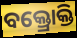
ବକ୍ତ୍ରୋକ୍ତି